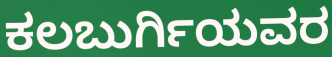
ಕಲಬುರ್ಗಿಯವರ